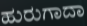
ಹುರುಗಾದಾ